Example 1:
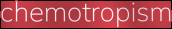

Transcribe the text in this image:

chemotropism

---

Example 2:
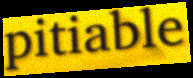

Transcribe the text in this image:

pitiable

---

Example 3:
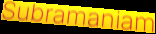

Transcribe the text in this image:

Subramaniam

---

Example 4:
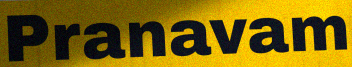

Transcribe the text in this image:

Pranavam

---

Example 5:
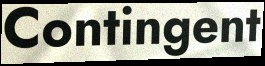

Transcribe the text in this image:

Contingent